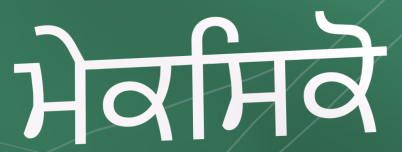
ਮੇਕਸਿਕੋ